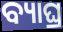
ବ୍ୟାଘ୍ର